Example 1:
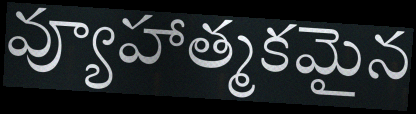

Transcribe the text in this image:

వ్యూహాత్మకమైన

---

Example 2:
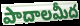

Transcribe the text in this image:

పాదాలమీద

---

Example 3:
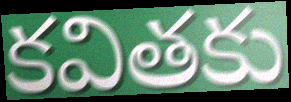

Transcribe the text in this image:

కవితకు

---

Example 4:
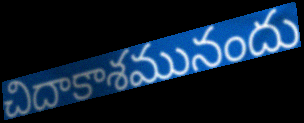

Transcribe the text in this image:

చిదాకాశమునందు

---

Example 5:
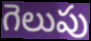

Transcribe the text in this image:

గెలుపు